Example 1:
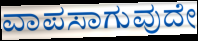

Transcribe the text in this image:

ವಾಪಸಾಗುವುದೇ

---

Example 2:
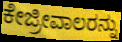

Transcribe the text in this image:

ಕೇಜ್ರೀವಾಲರನ್ನು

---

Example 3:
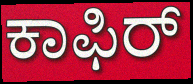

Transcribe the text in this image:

ಕಾಫಿರ್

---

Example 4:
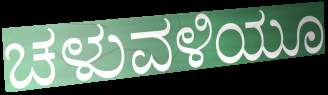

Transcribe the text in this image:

ಚಳುವಳಿಯೂ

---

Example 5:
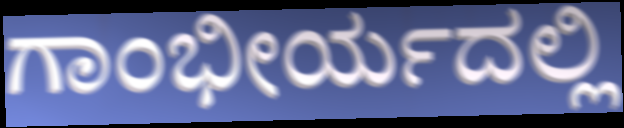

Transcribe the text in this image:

ಗಾಂಭೀರ್ಯದಲ್ಲಿ